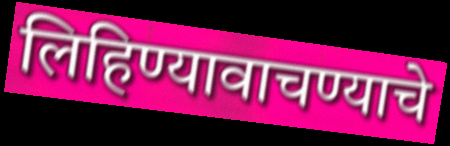
लिहिण्यावाचण्याचे